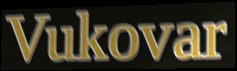
Vukovar